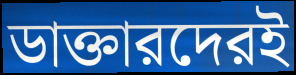
ডাক্তারদেরই